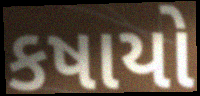
કષાયો